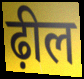
ढ़ील